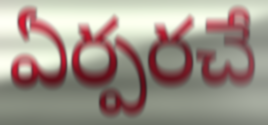
ఏర్పరచే